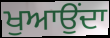
ਖੁਆਉਂਦਾ